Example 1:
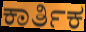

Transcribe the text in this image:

ಕಾರ್ತಿಕ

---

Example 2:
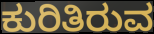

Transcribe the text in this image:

ಕುರಿತಿರುವ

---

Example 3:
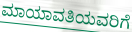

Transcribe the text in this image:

ಮಾಯಾವತಿಯವರಿಗೆ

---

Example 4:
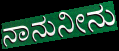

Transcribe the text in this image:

ನಾನುನೀನು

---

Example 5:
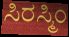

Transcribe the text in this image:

ಸಿರಸ್ಮಿಂ